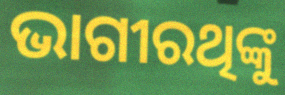
ଭାଗୀରଥିଙ୍କୁ